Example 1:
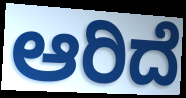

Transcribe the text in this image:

ಆರಿದೆ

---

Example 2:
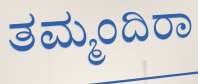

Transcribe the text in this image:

ತಮ್ಮಂದಿರಾ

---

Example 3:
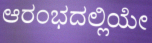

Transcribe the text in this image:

ಆರಂಭದಲ್ಲಿಯೇ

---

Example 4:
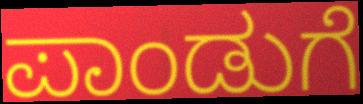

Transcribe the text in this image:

ಪಾಂಡುಗೆ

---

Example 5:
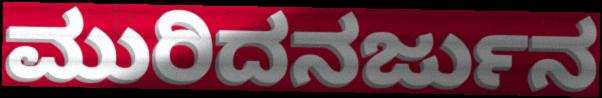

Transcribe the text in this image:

ಮುರಿದನರ್ಜುನ